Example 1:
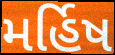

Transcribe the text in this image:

મર્હિષ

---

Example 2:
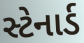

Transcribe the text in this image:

સ્ટેનાર્ડ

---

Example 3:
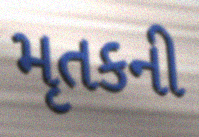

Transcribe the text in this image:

મૃતકની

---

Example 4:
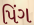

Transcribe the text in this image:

પિંગ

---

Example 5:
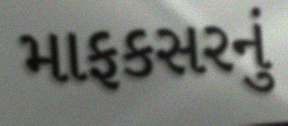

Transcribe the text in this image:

માફકસરનું